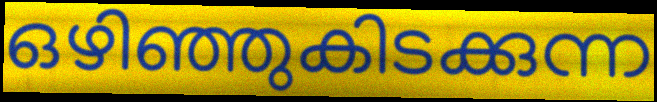
ഒഴിഞ്ഞുകിടക്കുന്ന